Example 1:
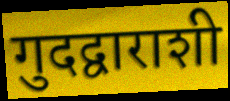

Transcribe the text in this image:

गुदद्वाराशी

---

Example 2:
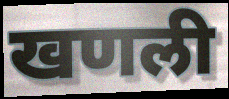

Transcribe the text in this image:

खणली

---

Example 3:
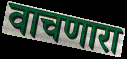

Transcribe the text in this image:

वाचणारा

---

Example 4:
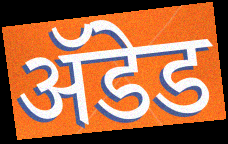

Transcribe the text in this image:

ॲडेड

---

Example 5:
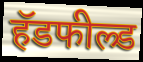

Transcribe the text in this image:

हॅडफील्ड